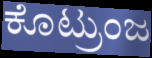
ಕೊಟ್ರುಂಜ